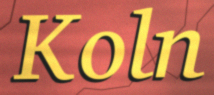
Koln